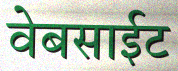
वेबसाईट